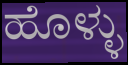
ಹೊಳ್ಳು